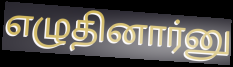
எழுதினார்னு